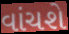
વાંચશે